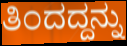
ತಿಂದದ್ದನ್ನು